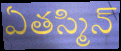
ఏతస్మిన్